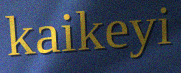
kaikeyi